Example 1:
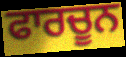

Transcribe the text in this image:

ਫਾਰਚੂਨ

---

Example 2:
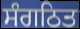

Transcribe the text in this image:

ਸੰਗਠਿਤ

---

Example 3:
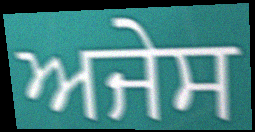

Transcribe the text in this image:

ਅਜੇਸ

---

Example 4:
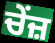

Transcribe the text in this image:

ਚੇਂਜ਼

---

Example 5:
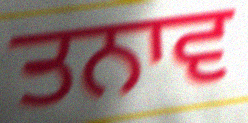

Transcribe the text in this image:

ਤਨਾਵ